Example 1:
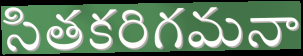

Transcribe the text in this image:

సితకరిగమనా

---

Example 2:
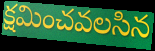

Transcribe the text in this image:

క్షమించవలసిన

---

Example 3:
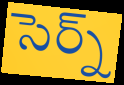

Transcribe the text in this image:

సెర్న్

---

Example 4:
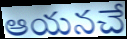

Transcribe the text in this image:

ఆయనచే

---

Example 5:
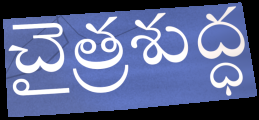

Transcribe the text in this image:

చైత్రశుద్ధ